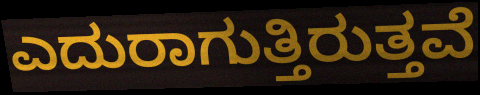
ಎದುರಾಗುತ್ತಿರುತ್ತವೆ